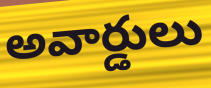
అవార్డులు